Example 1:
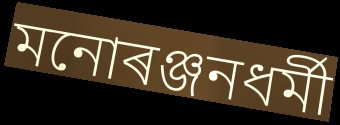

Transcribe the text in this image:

মনোৰঞ্জনধৰ্মী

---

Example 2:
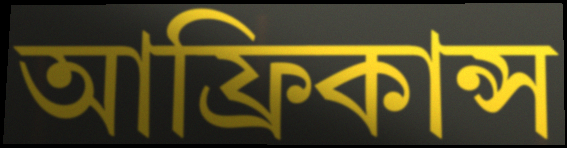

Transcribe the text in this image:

আফ্ৰিকান্স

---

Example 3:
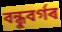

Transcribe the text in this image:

বন্ধুবৰ্গৰ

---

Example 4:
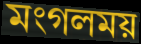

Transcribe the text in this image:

মংগলময়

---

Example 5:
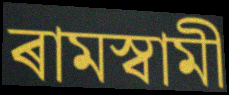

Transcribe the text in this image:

ৰামস্বামী